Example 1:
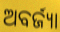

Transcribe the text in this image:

ଅବର୍ଜ୍ୟା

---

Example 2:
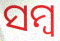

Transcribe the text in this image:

ସମ୍ବ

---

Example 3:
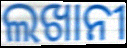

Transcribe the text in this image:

ଲଖାନୀ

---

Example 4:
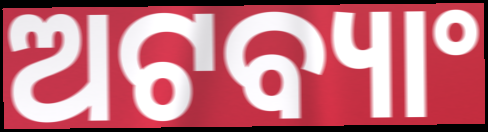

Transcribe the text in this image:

ଅଟବ୍ୟାଂ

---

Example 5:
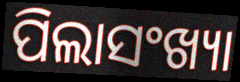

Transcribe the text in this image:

ପିଲାସଂଖ୍ୟା